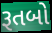
રૂતબો